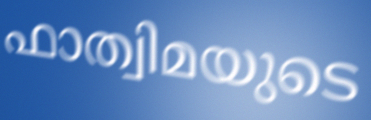
ഫാത്വിമയുടെ